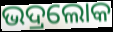
ଭଦ୍ରଲୋକ